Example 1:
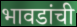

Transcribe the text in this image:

भावडांची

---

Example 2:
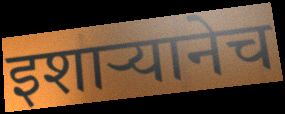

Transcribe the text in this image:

इशाऱ्यानेच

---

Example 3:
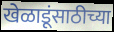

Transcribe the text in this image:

खेळाडूंसाठीच्या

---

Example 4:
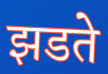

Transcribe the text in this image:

झडते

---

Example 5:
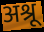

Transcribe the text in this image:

अश्रू